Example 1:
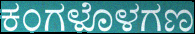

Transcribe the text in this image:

ಕಂಗಳೊಳಗಣ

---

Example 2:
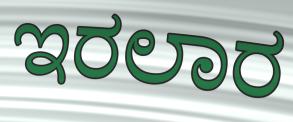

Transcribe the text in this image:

ಇರಲಾರ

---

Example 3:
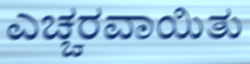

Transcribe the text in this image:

ಎಚ್ಚರವಾಯಿತು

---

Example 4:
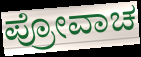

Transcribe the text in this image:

ಪ್ರೋವಾಚ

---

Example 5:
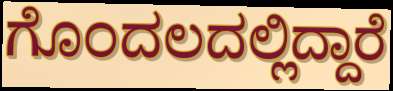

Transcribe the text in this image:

ಗೊಂದಲದಲ್ಲಿದ್ದಾರೆ